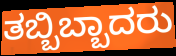
ತಬ್ಬಿಬ್ಬಾದರು